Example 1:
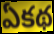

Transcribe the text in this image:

ఏకథ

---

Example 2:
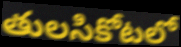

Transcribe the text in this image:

తులసికోటలో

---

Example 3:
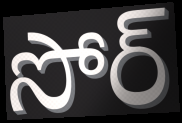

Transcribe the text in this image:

సోర్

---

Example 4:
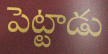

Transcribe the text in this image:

పెట్టాడు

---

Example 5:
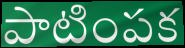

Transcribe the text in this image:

పాటింపక